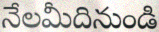
నేలమీదినుండి